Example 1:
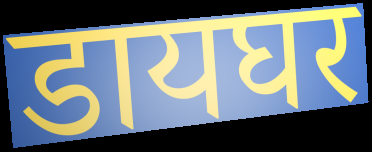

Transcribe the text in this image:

डायघर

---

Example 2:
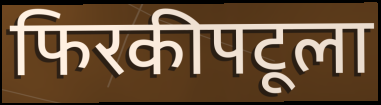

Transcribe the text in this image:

फिरकीपटूला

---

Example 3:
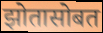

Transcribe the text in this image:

झोतासोबत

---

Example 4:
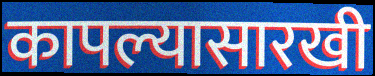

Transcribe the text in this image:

कापल्यासारखी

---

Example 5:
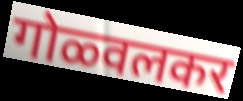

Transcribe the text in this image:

गोळ्वलकर